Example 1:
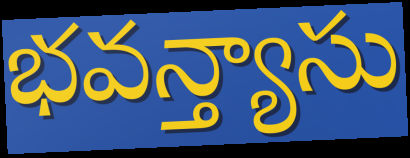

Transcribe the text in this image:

భవన్త్యాసు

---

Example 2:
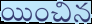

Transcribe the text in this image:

యించిన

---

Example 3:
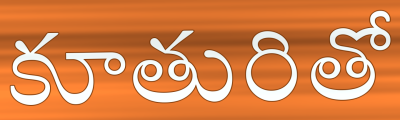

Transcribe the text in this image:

కూతురితో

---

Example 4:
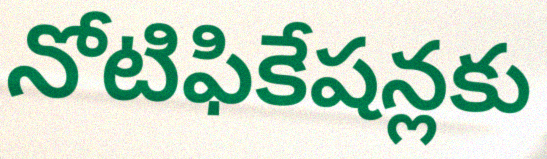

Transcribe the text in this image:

నోటిఫికేషన్లకు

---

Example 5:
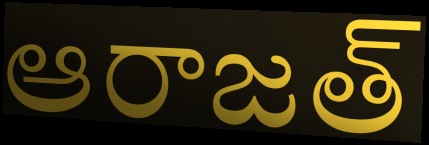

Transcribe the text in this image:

ఆరాజత్